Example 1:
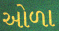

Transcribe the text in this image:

ઓળા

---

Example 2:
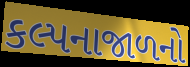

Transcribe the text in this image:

કલ્પનાજાળનો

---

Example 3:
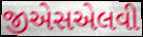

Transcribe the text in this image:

જીએસએલવી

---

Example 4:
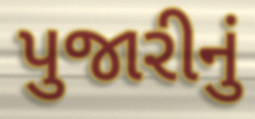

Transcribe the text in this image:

પુજારીનું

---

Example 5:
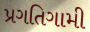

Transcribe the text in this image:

પ્રગતિગામી